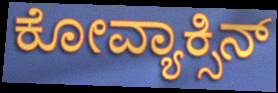
ಕೋವ್ಯಾಕ್ಸಿನ್